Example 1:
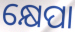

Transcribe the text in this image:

କ୍ଷେପା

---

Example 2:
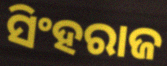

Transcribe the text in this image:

ସିଂହରାଜ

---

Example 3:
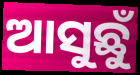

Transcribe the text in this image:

ଆସୁଛୁଁ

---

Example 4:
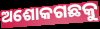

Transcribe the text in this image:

ଅଶୋକଗଛକୁ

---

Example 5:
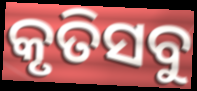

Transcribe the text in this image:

କୃତିସବୁ